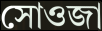
সোওজা